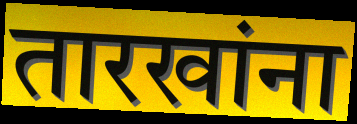
तारखांना